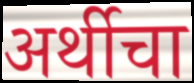
अर्थीचा